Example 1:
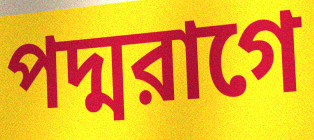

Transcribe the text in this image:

পদ্মরাগে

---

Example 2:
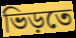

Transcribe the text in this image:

ভিড়তে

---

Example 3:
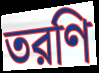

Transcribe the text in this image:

তরণি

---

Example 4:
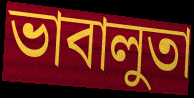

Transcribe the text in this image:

ভাবালুতা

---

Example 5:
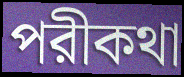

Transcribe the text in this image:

পরীকথা